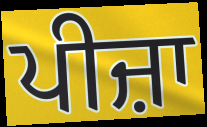
ਪੀਜ਼ਾ